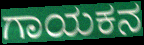
ಗಾಯಕನ